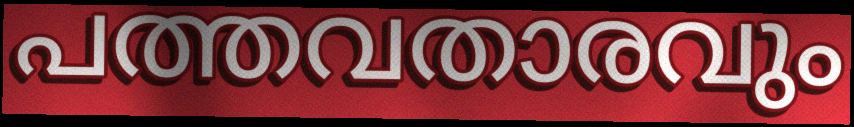
പത്തവതാരവും